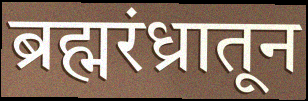
ब्रह्मरंध्रातून